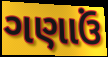
ગણાઉં